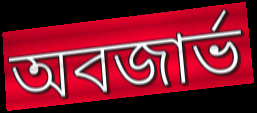
অবজার্ভ